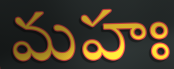
మహః